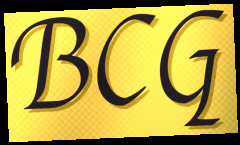
BCG